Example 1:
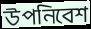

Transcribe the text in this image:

উপনিবেশ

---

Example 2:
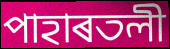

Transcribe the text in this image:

পাহাৰতলী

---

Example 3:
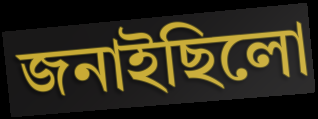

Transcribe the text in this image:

জনাইছিলো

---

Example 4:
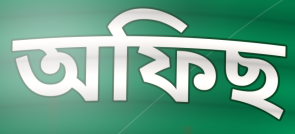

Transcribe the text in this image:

অফিছ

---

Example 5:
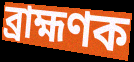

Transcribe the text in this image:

ব্ৰাহ্মণক